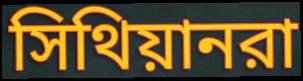
সিথিয়ানরা